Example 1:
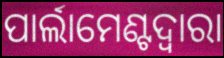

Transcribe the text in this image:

ପାର୍ଲାମେଣ୍ଟଦ୍ୱାରା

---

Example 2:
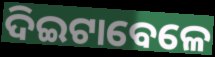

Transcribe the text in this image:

ଦିଇଟାବେଳେ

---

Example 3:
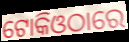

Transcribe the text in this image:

ଟୋକିଓଠାରେ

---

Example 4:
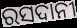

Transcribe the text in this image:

ରସଦାନୀ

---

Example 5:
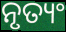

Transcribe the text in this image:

ନୃତ୍ୟଂ